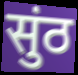
सुंठ